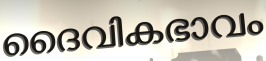
ദൈവികഭാവം